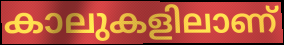
കാലുകളിലാണ്